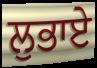
ਲੁਭਾਏ